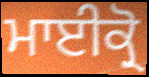
ਮਾਈਕ੍ਰੋ